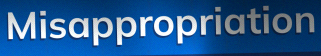
Misappropriation